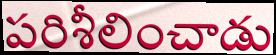
పరిశీలించాడు